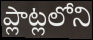
ప్లాట్లలోని